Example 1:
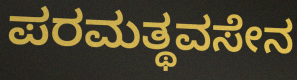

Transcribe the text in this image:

ಪರಮತ್ಥವಸೇನ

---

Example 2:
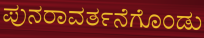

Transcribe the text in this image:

ಪುನರಾವರ್ತನೆಗೊಂಡು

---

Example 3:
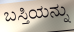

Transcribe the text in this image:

ಬಸ್ತಿಯನ್ನು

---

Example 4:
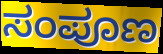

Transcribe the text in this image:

ಸಂಪೂಣ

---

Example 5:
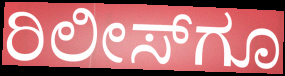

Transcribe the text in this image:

ರಿಲೀಸ್‌ಗೂ